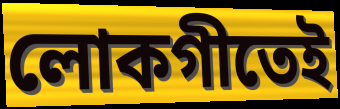
লোকগীতেই